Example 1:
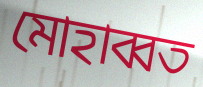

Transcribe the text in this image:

মোহাব্বত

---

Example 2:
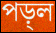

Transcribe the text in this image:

পড়্ল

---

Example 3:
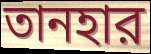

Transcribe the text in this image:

তানহার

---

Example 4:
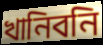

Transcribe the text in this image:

খানিবনি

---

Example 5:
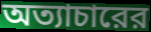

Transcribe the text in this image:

অত্যাচারের